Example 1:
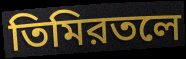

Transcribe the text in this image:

তিমিরতলে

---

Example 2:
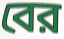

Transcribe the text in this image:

বের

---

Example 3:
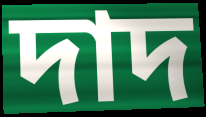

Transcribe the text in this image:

দাদ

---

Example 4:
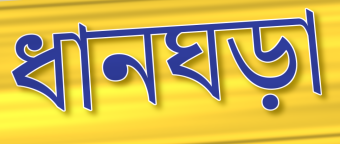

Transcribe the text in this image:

ধানঘড়া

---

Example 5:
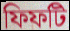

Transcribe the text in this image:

ফিফটি